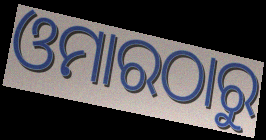
ଓମାରଠାରୁ